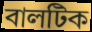
বালটিক